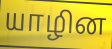
யாழின